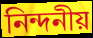
নিন্দনীয়